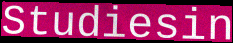
Studiesin